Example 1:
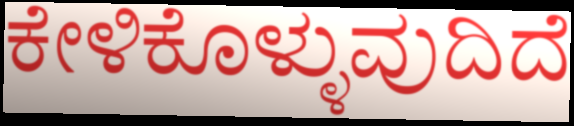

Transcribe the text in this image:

ಕೇಳಿಕೊಳ್ಳುವುದಿದೆ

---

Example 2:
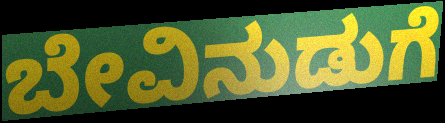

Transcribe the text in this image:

ಬೇವಿನುಡುಗೆ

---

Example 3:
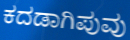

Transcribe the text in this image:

ಕದಡಾಗಿಪುವು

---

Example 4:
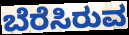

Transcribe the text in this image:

ಬೆರೆಸಿರುವ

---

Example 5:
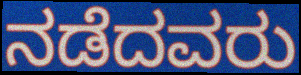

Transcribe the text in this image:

ನಡೆದವರು